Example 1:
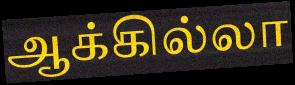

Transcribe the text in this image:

ஆக்கில்லா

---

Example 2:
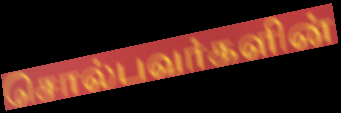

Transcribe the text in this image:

சொல்பவர்களின்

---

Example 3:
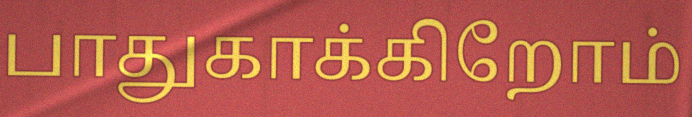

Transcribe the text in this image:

பாதுகாக்கிறோம்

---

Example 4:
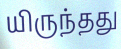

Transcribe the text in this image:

யிருந்தது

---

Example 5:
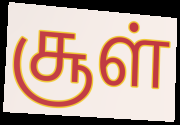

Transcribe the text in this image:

சூள்